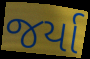
જર્યા